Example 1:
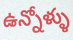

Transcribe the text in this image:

ఉన్నోళ్ళు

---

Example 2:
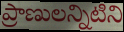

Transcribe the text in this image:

ప్రాణులన్నిటిని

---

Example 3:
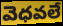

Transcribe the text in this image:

వెధవలే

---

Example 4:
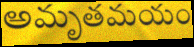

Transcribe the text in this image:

అమృతమయం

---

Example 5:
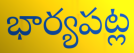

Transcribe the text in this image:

భార్యపట్ల